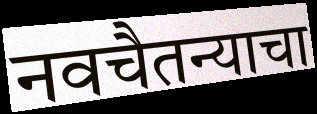
नवचैतन्याचा